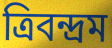
ত্রিবন্দ্রম